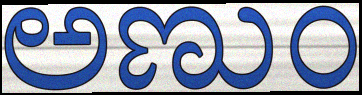
ಅಣುಂ